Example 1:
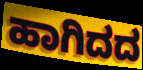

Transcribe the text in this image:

ಹಾಗಿದದ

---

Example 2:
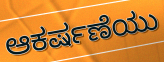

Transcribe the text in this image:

ಆಕರ್ಷಣೆಯು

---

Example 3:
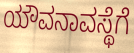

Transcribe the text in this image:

ಯೌವನಾವಸ್ಥೆಗೆ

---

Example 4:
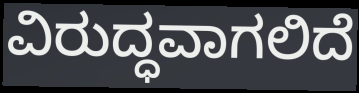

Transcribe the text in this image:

ವಿರುದ್ಧವಾಗಲಿದೆ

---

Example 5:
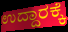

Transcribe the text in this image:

ಉದ್ದಾರಕ್ಕೆ